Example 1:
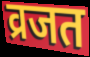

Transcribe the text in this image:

व्रजत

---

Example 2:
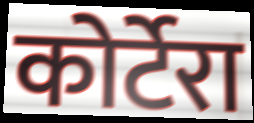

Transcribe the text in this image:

कोर्टेरा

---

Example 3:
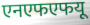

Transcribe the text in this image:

एनएफएफयू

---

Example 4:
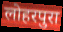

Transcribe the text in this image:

लोहरपुरा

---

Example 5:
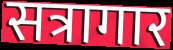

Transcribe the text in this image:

सत्रागार